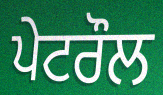
ਪੇਟਰੌਲ